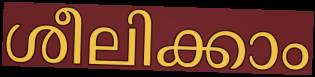
ശീലിക്കാം